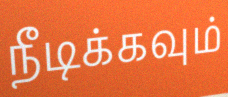
நீடிக்கவும்